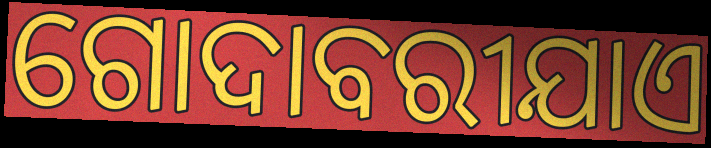
ଗୋଦାବରୀଯାଏ